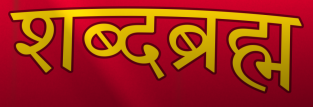
शब्दब्रह्म